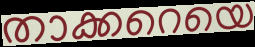
താക്കറെയെ